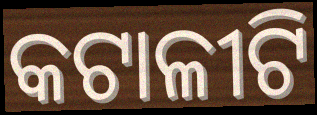
କଟାଳୀଟି